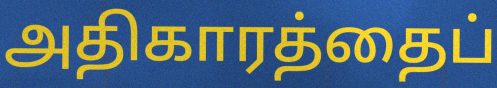
அதிகாரத்தைப்